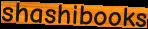
shashibooks